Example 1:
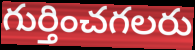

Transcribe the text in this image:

గుర్తించగలరు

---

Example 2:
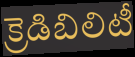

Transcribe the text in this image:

క్రెడిబిలిటీ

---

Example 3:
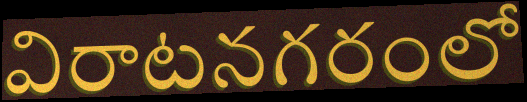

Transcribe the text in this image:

విరాటనగరంలో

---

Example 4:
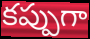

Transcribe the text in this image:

కప్పుగా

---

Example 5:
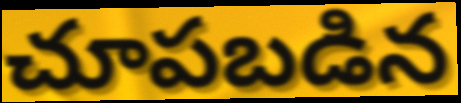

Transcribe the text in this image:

చూపబడిన